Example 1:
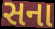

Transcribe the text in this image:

સના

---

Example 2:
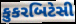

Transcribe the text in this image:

કુકરબિટેસી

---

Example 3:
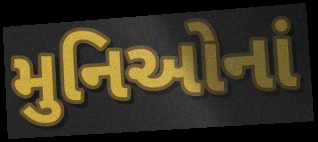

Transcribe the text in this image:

મુનિઓનાં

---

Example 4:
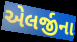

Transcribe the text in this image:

એલર્જીના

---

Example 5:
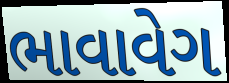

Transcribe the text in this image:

ભાવાવેગ